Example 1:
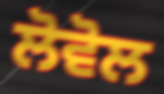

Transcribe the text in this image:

ਲੋਵੋਲ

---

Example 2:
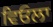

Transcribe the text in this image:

ਵਿਓਲਾ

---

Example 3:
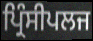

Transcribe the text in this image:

ਪ੍ਰਿੰਸੀਪਲਜ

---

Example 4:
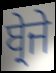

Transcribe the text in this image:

ਬ੍ਰੇਜੇ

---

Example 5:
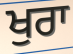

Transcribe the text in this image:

ਖੁਰਾ